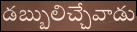
డబ్బులిచ్చేవాడు